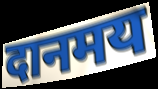
दानमय